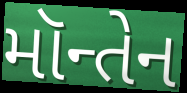
મૉન્તેન